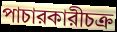
পাচারকারীচক্র